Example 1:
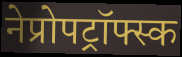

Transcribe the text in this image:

नेप्रोपट्रॉफ्स्क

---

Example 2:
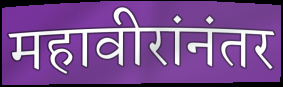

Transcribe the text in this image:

महावीरांनंतर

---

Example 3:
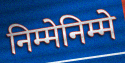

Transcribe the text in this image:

निम्मेनिम्मे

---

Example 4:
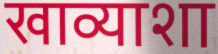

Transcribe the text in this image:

खाव्याशा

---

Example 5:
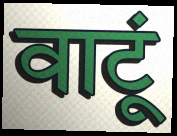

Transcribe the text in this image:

वाटूं